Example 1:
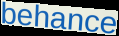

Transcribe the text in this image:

behance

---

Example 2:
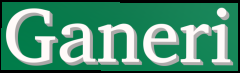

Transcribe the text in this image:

Ganeri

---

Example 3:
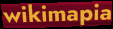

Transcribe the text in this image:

wikimapia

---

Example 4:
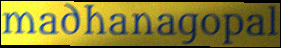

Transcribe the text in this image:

madhanagopal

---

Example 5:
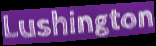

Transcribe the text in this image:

Lushington